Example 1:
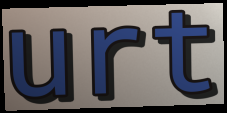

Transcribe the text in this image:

urt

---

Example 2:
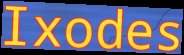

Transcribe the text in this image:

Ixodes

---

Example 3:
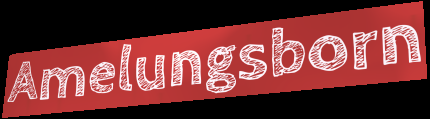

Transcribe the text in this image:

Amelungsborn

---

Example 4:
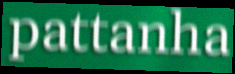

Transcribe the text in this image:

pattanha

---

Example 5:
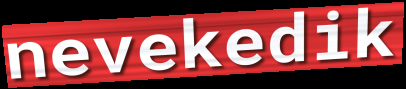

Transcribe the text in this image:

nevekedik